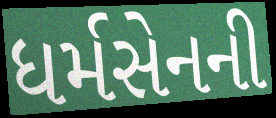
ધર્મસેનની